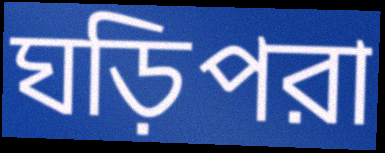
ঘড়িপরা